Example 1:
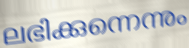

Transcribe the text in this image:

ലഭിക്കുന്നെന്നും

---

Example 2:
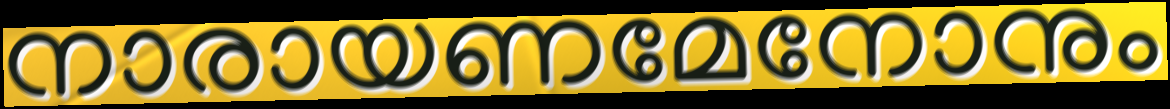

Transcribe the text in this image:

നാരായണമേനോനും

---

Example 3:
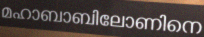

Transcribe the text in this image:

മഹാബാബിലോണിനെ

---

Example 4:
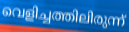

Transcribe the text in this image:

വെളിച്ചത്തിലിരുന്ന്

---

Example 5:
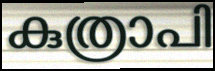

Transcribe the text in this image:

കുത്രാപി